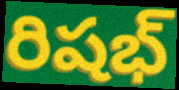
రిషభ్